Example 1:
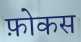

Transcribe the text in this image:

फ़ोकस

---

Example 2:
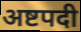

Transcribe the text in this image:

अष्टपदी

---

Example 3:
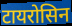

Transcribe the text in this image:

टायरोसिन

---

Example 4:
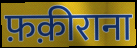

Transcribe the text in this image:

फ़क़ीराना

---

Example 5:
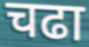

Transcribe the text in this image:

चढा